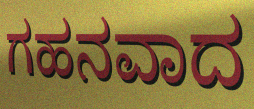
ಗಹನವಾದ